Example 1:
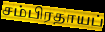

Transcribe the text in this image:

சம்பிரதாயப்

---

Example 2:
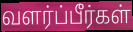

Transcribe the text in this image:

வளர்ப்பீர்கள்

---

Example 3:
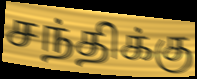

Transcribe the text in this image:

சந்திக்கு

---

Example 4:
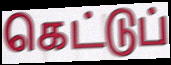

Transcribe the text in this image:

கெட்டுப்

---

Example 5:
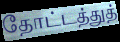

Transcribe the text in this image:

தோட்டத்துத்